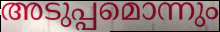
അടുപ്പമൊന്നും